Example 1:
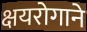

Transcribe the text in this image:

क्षयरोगाने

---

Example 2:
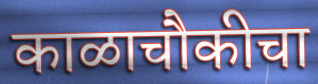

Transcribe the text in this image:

काळाचौकीचा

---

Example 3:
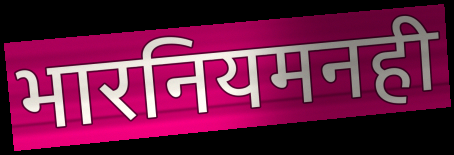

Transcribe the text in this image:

भारनियमनही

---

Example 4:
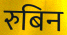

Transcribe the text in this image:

रुबिन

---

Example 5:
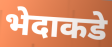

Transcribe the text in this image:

भेदाकडे